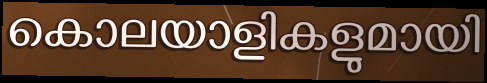
കൊലയാളികളുമായി